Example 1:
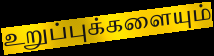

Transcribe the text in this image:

உறுப்புக்களையும்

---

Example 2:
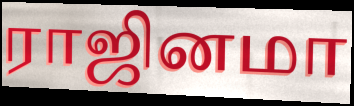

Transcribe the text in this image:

ராஜினமா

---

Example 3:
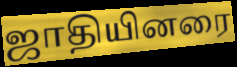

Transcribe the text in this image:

ஜாதியினரை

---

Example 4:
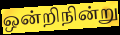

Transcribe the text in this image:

ஒன்றிநின்று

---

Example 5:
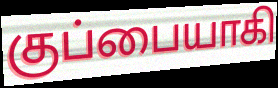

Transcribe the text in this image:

குப்பையாகி